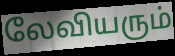
லேவியரும்